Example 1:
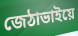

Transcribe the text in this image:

জেঠাভাইয়ে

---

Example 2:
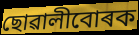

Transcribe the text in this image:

ছোৱালীবোৰক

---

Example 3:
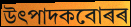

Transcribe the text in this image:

উৎপাদকবোৰৰ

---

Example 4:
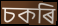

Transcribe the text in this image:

চকৰি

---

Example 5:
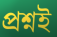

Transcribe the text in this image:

প্ৰশ্নই